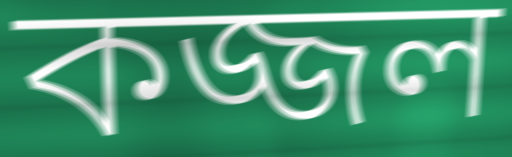
কজ্জল